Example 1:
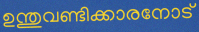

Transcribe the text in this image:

ഉന്തുവണ്ടിക്കാരനോട്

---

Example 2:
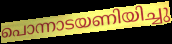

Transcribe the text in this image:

പൊന്നാടയണിയിച്ചു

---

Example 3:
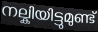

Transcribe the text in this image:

നല്കിയിട്ടുമുണ്ട്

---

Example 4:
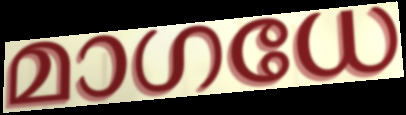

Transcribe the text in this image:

മാഗധേ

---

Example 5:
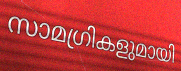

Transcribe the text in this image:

സാമഗ്രികളുമായി